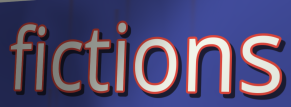
fictions